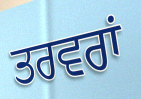
ਤਰਵਰਾਂ